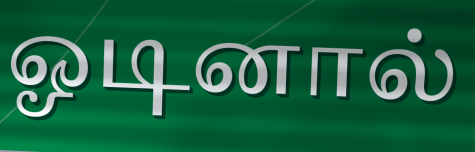
ஓடினால்